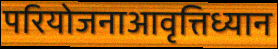
परियोजनाआवृत्तिध्यान